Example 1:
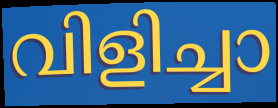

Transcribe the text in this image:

വിളിച്ചാ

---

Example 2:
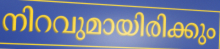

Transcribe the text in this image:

നിറവുമായിരിക്കും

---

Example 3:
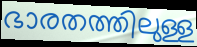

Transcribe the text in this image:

ഭാരതത്തിലുള്ള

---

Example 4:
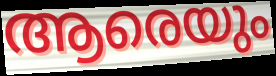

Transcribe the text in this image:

ആരെയും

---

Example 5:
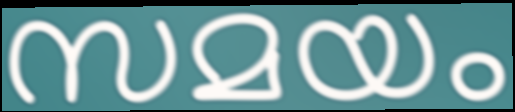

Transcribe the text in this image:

സമയം